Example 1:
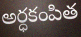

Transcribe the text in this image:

అర్ధకంపిత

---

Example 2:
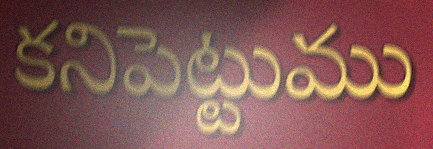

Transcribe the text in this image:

కనిపెట్టుము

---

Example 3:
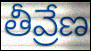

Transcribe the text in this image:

తీవ్రేణ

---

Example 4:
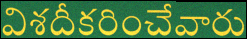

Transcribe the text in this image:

విశదీకరించేవారు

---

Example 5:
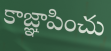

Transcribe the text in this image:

కాజ్ఞాపించు